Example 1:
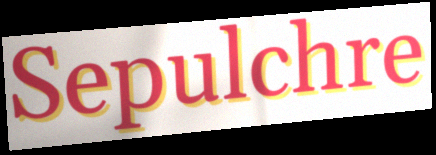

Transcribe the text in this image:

Sepulchre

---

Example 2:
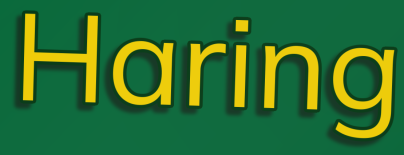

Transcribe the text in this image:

Haring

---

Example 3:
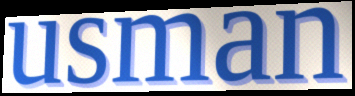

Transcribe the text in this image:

usman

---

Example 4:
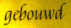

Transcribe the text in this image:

gebouwd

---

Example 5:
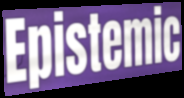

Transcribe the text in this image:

Epistemic